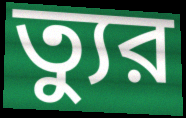
ত্যুর